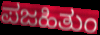
ಪಜಹಿತುಂ